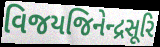
વિજયજિનેન્દ્રસૂરિ